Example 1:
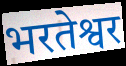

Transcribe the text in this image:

भरतेश्वर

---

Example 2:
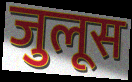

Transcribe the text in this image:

जुलूस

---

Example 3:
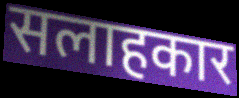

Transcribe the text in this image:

सलाहकार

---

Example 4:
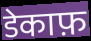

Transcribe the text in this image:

डेकाफ़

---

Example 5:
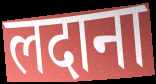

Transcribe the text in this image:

लदाना